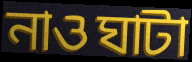
নাওঘাটা